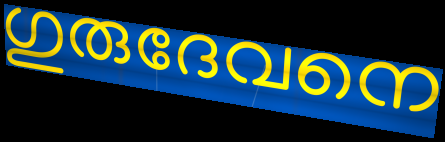
ഗുരുദേവനെ